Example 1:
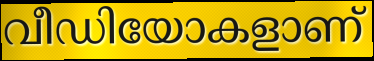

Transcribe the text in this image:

വീഡിയോകളാണ്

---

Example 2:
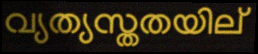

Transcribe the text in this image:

വ്യത്യസ്തതയില്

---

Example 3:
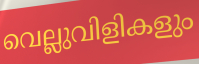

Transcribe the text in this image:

വെല്ലുവിളികളും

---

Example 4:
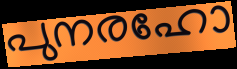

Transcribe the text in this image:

പുനരഹോ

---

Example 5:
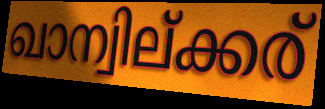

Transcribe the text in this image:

ഖാന്വില്ക്കര്